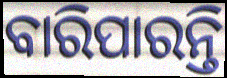
ବାରିପାରନ୍ତି